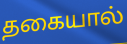
தகையால்